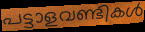
പട്ടാളവണ്ടികൾ